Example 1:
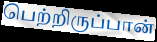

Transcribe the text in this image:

பெற்றிருப்பான்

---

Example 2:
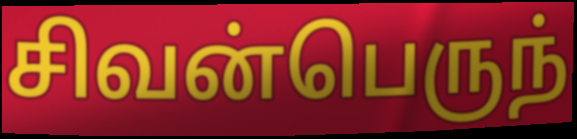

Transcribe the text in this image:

சிவன்பெருந்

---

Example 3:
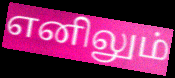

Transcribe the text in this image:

எனிலும்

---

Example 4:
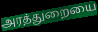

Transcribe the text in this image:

அரத்துறையை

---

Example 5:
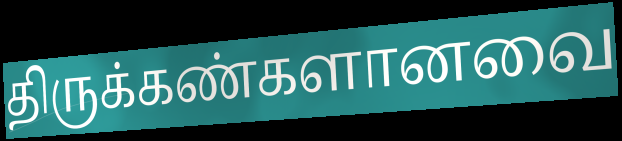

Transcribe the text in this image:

திருக்கண்களானவை